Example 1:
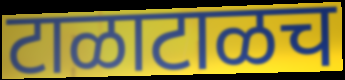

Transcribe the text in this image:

टाळाटाळच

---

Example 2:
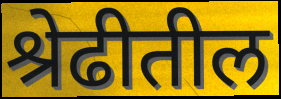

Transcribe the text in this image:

श्रेढीतील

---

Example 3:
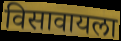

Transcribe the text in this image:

विसावायला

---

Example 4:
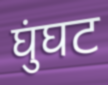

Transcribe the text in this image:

घुंघट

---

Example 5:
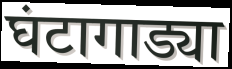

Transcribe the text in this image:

घंटागाड्या